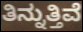
ತಿನ್ನುತ್ತಿವೆ